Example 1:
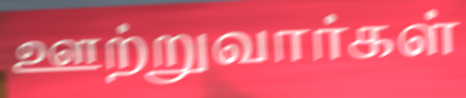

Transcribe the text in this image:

ஊற்றுவார்கள்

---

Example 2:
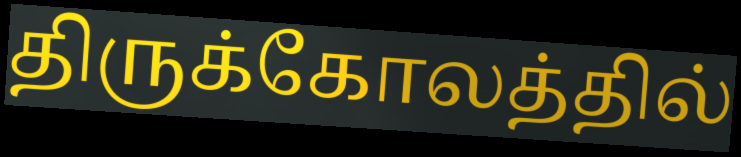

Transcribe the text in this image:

திருக்கோலத்தில்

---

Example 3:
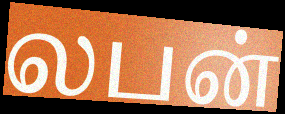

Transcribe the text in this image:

லபன்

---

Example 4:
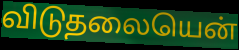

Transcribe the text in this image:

விடுதலையென்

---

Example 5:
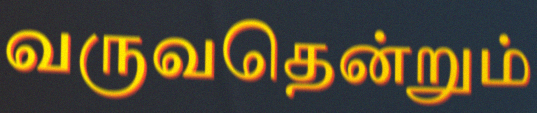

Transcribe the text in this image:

வருவதென்றும்